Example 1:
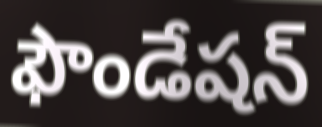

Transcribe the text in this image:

ఫౌండేషన్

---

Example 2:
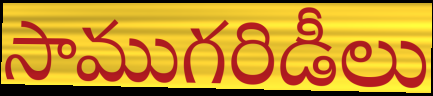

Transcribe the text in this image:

సాముగరిడీలు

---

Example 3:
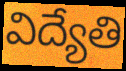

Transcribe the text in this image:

విద్యేతి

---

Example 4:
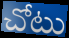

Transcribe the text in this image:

చోటు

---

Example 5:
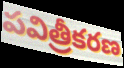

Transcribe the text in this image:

పవిత్రీకరణ